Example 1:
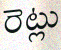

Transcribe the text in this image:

రెట్లు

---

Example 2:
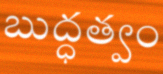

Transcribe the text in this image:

బుద్ధత్వం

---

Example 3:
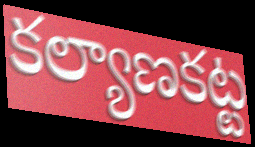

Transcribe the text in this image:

కల్యాణకట్ట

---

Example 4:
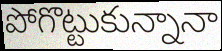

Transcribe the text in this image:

పోగొట్టుకున్నానా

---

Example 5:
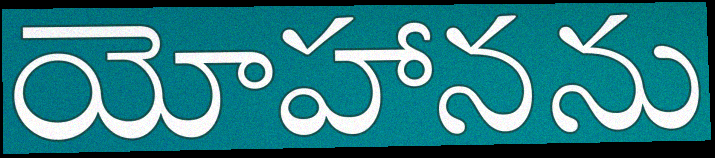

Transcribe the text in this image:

యోహానను